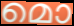
മൊ